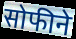
सोफीने